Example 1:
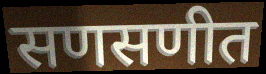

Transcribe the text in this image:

सणसणीत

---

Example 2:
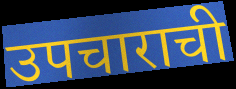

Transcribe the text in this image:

उपचाराची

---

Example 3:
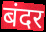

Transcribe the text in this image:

बंदर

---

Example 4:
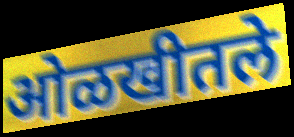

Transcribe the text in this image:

ओळखीतले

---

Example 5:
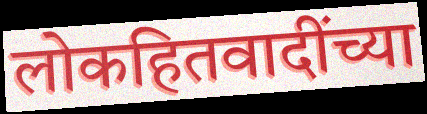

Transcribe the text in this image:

लोकहितवादींच्या